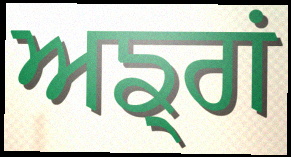
ਅਙ੍ਗਂ